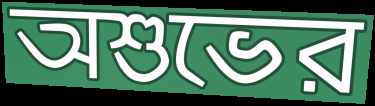
অশুভের